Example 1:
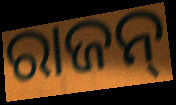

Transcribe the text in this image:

ରାଜନ୍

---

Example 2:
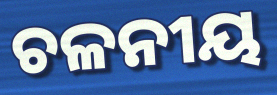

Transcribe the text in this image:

ଚଳନୀୟ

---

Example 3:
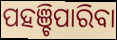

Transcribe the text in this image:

ପହଞ୍ଚିପାରିବା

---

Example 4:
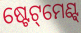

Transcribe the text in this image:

ଷ୍ଟେଟ୍‌ମେଣ୍ଟ୍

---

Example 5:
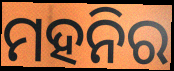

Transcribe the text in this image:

ମହନିର